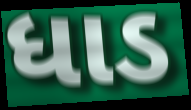
ધાડ